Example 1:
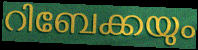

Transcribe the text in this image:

റിബേക്കയും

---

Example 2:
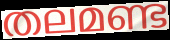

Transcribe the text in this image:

തലമണ്ട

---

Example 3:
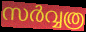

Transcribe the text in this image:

സർവ്വത്ര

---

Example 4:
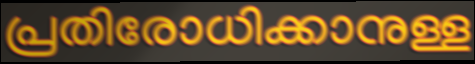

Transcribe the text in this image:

പ്രതിരോധിക്കാനുള്ള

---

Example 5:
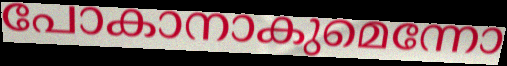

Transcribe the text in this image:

പോകാനാകുമെന്നോ